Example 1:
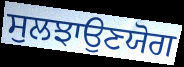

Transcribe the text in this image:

ਸੁਲਝਾਉਣਯੋਗ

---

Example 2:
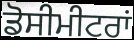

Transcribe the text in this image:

ਡੋਸੀਮੀਟਰਾਂ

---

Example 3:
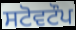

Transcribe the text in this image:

ਸਟੋਵਟੌਪ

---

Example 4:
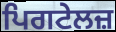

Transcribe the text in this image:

ਪਿਗਟੇਲਜ਼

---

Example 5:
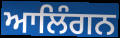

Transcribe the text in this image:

ਆਲਿੰਗਨ